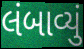
લંબાવ્યું